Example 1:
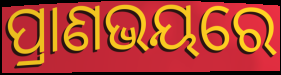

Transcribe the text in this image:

ପ୍ରାଣଭୟରେ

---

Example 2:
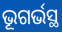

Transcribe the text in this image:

ଭୂଗର୍ଭସ୍ଥ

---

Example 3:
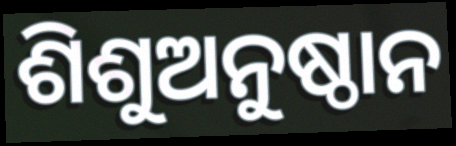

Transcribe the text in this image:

ଶିଶୁଅନୁଷ୍ଠାନ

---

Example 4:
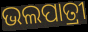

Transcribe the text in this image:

ଭଲପାତ୍ରୀ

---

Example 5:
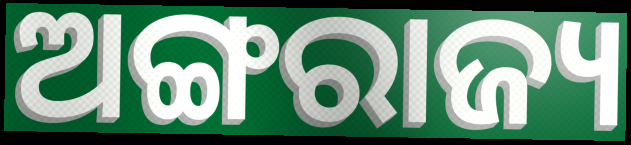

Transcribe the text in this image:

ଅଙ୍ଗରାଜ୍ୟ